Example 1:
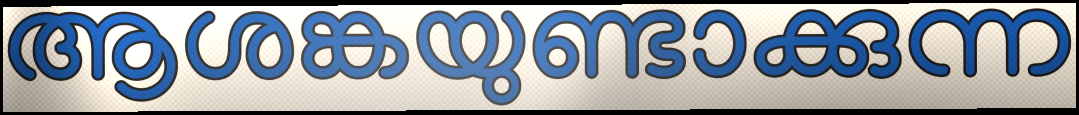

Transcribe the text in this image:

ആശങ്കയുണ്ടാക്കുന്ന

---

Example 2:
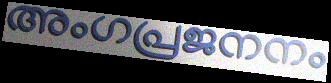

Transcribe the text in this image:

അംഗപ്രജനനം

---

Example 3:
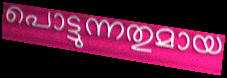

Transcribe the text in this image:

പൊട്ടുന്നതുമായ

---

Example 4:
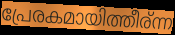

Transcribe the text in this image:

പ്രേരകമായിത്തീര്ന്ന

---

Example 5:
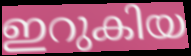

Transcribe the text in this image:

ഇറുകിയ